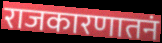
राजकारणातनं